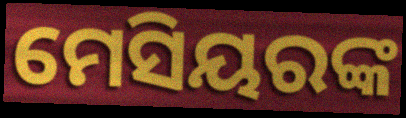
ମେସିୟରଙ୍କ